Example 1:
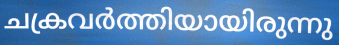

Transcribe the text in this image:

ചക്രവർത്തിയായിരുന്നു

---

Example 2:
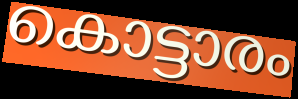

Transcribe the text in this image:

കൊട്ടാരം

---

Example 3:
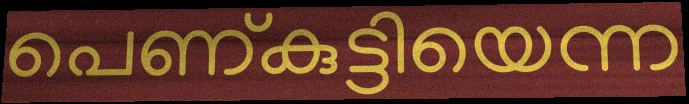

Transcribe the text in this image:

പെണ്കുട്ടിയെന്ന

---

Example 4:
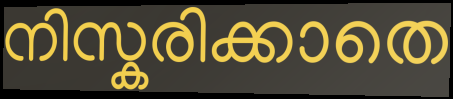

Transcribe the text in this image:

നിസ്കരിക്കാതെ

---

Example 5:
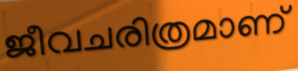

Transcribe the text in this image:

ജീവചരിത്രമാണ്